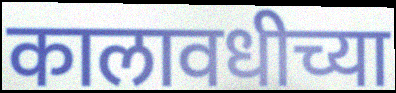
कालावधीच्या